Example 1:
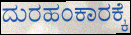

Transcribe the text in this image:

ದುರಹಂಕಾರಕ್ಕೆ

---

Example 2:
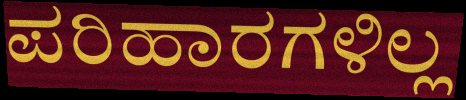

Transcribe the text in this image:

ಪರಿಹಾರಗಳಿಲ್ಲ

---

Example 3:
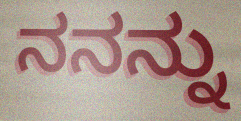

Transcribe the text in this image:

ನನನ್ನು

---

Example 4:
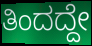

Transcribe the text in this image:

ತಿಂದದ್ದೇ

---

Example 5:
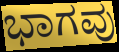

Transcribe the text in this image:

ಭಾಗವು